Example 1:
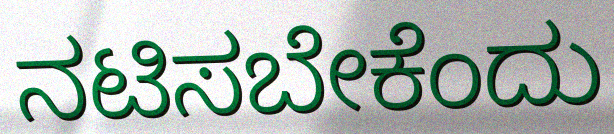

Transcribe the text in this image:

ನಟಿಸಬೇಕೆಂದು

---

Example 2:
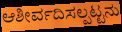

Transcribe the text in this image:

ಆಶೀರ್ವದಿಸಲ್ಪಟ್ಟನು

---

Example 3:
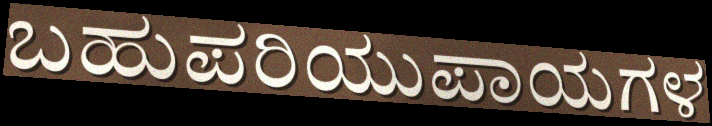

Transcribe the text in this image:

ಬಹುಪರಿಯುಪಾಯಗಳ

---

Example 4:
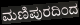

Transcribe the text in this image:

ಮಣಿಪುರದಿಂದ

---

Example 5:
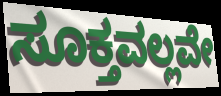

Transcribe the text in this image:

ಸೂಕ್ತವಲ್ಲವೇ